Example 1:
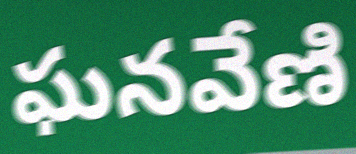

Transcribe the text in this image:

ఘనవేణి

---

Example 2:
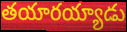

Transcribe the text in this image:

తయారయ్యాడు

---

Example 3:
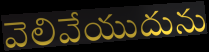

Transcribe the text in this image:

వెలివేయుదును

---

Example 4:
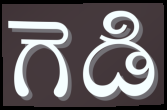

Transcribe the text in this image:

గెడి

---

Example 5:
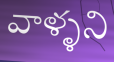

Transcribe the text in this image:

వాళ్ళని